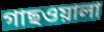
গাছওয়ালা